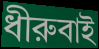
ধীরুবাই